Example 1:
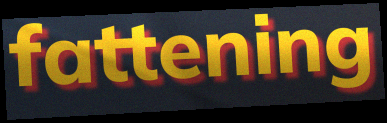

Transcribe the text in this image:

fattening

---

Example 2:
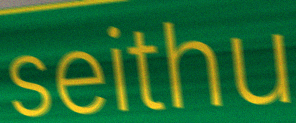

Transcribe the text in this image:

seithu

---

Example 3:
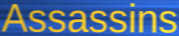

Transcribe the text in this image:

Assassins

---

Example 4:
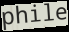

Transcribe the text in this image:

phile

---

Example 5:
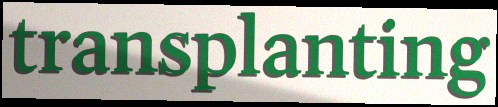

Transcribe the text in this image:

transplanting